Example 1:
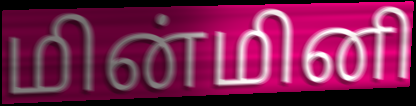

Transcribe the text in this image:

மின்மினி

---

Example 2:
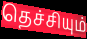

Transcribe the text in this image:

தெச்சியும்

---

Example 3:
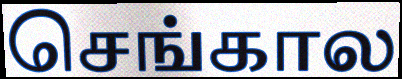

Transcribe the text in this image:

செங்கால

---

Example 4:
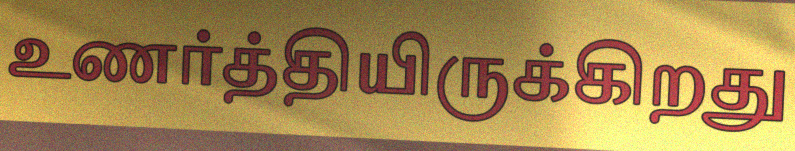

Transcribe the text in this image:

உணர்த்தியிருக்கிறது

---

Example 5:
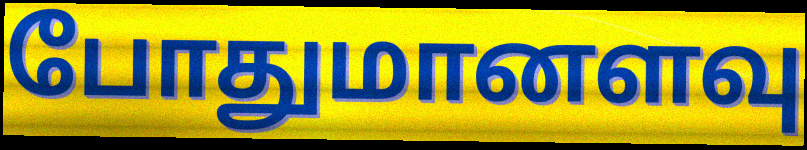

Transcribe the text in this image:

போதுமானளவு